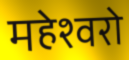
महेश्वरो